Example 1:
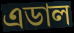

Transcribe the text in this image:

এডাল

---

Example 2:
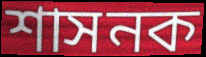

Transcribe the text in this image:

শাসনক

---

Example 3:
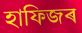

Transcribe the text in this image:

হাফিজৰ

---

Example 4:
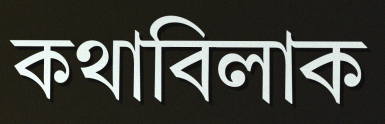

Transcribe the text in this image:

কথাবিলাক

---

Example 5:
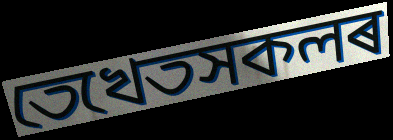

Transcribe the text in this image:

তেখেতসকলৰ